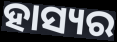
ହାସ୍ୟର